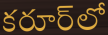
కరూర్‌లో